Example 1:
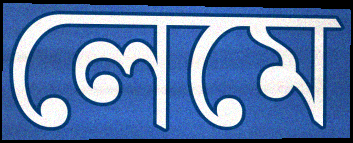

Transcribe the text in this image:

লেমে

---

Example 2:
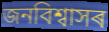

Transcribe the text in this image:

জনবিশ্বাসৰ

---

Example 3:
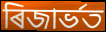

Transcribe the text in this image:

ৰিজাৰ্ভত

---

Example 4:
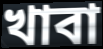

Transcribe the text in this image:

খাবা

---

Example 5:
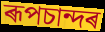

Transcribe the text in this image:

ৰূপচান্দৰ